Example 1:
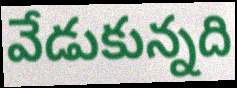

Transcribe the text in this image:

వేడుకున్నది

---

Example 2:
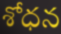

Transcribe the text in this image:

శోధన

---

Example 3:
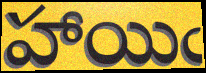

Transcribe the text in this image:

హాయిఁ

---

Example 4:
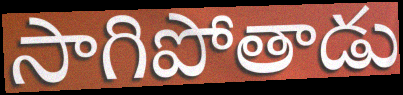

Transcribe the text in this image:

సాగిపోతాడు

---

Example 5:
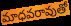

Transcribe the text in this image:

మాధవరావుతో